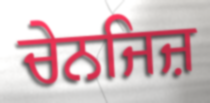
ਚੇਨਜਿਜ਼